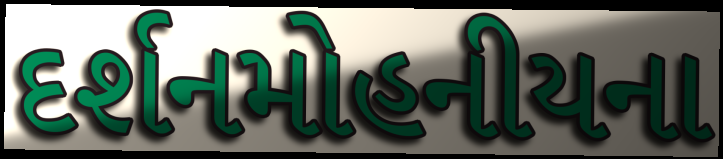
દર્શનમોહનીયના